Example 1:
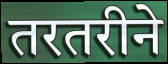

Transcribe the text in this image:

तरतरीने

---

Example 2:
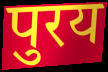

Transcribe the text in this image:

पुरय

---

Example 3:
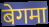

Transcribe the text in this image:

बेगमा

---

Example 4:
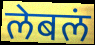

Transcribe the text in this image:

लेबलं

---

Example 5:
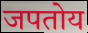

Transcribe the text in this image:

जपतोय